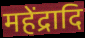
महेंद्रादि